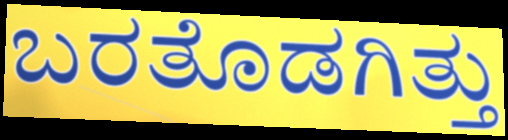
ಬರತೊಡಗಿತ್ತು